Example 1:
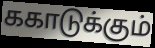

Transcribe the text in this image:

ககாடுக்கும்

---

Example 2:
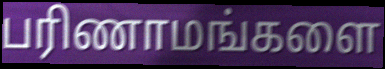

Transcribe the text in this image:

பரிணாமங்களை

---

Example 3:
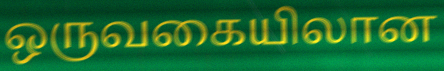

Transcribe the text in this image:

ஒருவகையிலான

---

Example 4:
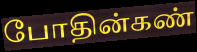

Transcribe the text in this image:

போதின்கண்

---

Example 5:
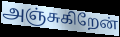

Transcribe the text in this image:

அஞ்சுகிறேன்